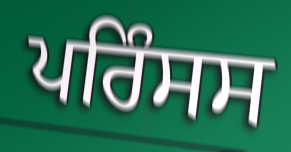
ਪਰਿੰਸਸ